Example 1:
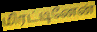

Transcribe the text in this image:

மிரட்டினேன்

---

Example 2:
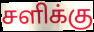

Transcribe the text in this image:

சளிக்கு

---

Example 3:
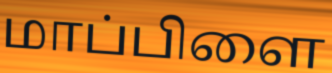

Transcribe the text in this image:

மாப்பிளை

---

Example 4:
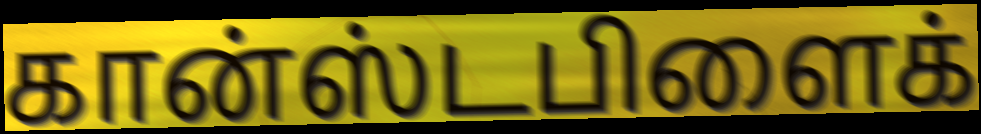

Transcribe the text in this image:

கான்ஸ்டபிளைக்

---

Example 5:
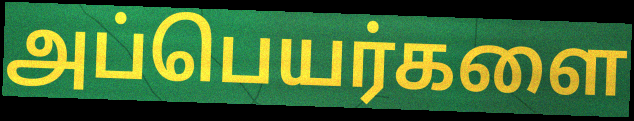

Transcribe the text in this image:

அப்பெயர்களை